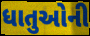
ધાતુઓની